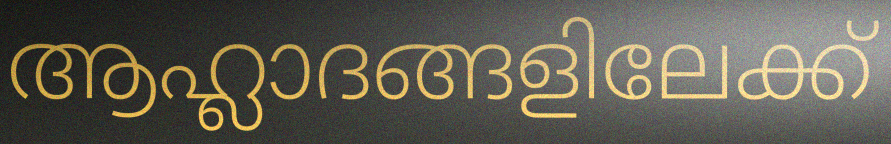
ആഹ്ലാദങ്ങളിലേക്ക്